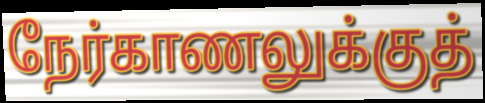
நேர்காணலுக்குத்